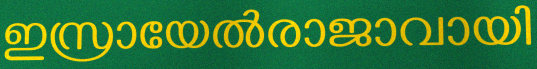
ഇസ്രായേൽരാജാവായി